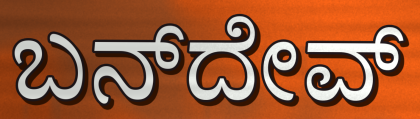
ಬನ್‌ದೇವ್